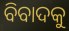
ବିବାଦକୁ